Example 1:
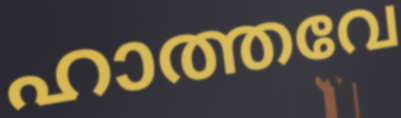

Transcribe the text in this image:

ഹാത്തവേ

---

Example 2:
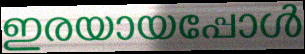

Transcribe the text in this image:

ഇരയായപ്പോൾ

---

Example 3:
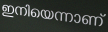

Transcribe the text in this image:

ഇനിയെന്നാണ്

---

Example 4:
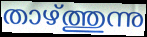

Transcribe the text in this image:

താഴ്ത്തുന്നു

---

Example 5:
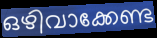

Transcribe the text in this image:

ഒഴിവാക്കേണ്ട